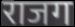
राजग